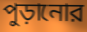
পুড়ানোর